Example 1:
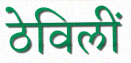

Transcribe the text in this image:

ठेविलीं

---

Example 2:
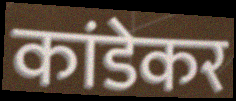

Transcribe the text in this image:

कांडेकर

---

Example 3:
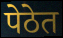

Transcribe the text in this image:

पेठेत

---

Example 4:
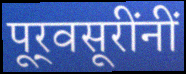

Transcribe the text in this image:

पूर्वसूरींनीं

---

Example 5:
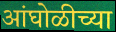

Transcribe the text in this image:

आंघोळीच्या